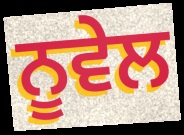
ਨੂਵੇਲ